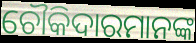
ଚୌକିଦାରମାନଙ୍କ